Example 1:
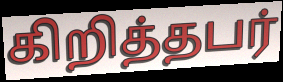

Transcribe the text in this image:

கிறித்தபர்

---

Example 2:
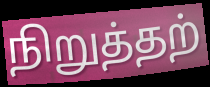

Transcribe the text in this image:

நிறுத்தற்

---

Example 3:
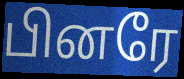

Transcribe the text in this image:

பினரே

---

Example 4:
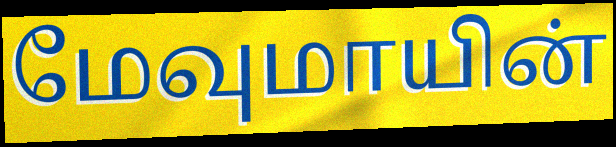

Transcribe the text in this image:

மேவுமாயின்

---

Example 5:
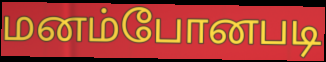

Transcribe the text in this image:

மனம்போனபடி